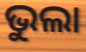
ଭୁଲା